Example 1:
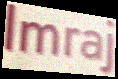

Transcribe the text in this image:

Imraj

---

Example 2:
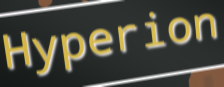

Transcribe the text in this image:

Hyperion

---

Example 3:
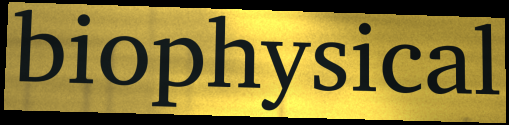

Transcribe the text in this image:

biophysical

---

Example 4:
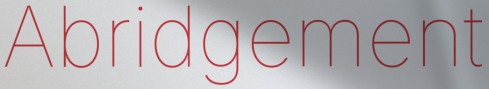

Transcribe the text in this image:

Abridgement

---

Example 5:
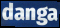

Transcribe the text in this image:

danga